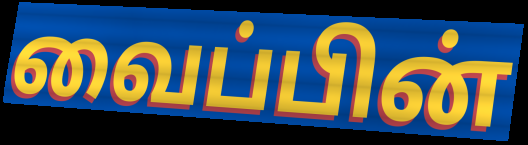
வைப்பின்